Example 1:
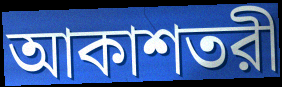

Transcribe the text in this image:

আকাশতরী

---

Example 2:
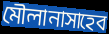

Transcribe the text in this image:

মৌলানাসাহেব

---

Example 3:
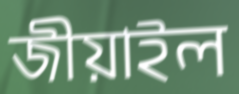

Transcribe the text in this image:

জীয়াইল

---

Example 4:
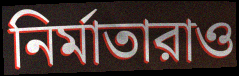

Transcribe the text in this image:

নির্মাতারাও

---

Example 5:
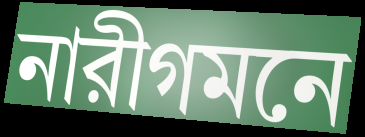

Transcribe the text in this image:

নারীগমনে